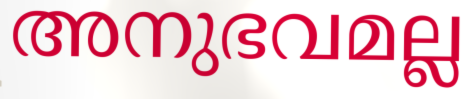
അനുഭവമല്ല